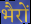
भैरों